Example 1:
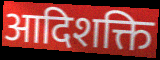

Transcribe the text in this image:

आदिशक्ति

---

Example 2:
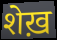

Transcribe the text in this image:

शेख़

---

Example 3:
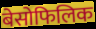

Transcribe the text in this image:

बेसोफिलिक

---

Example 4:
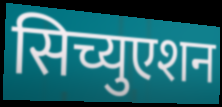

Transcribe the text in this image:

सिच्युएशन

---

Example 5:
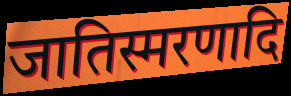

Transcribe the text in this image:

जातिस्मरणादि